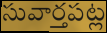
సువార్తపట్ల